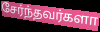
சேர்ந்தவர்களா